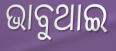
ଭାବୁଥାଇ